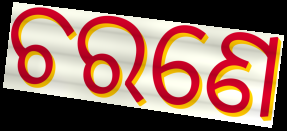
ଚରଣେ